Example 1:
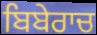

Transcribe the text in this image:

ਬਿਬੇਰਾਚ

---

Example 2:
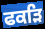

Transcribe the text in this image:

ਫਕੜਿ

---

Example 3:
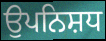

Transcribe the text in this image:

ਉਪਨਿਸ਼ਧ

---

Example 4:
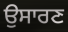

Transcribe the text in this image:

ਉਸਾਰਣ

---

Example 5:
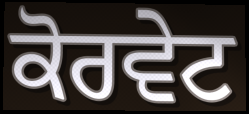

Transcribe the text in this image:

ਕੋਰਵੇਟ